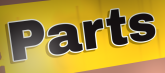
Parts